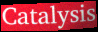
Catalysis